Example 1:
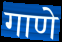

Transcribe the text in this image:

गाणे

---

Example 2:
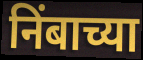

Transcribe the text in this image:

निंबाच्या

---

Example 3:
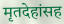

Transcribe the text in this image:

मृतदेहांसह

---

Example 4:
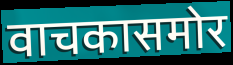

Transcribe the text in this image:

वाचकासमोर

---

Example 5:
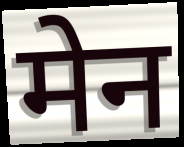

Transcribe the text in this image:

मेन